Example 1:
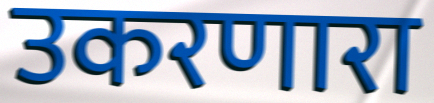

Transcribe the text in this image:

उकरणारा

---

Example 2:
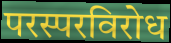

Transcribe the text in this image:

परस्परविरोध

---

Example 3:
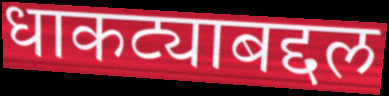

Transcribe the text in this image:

धाकट्याबद्दल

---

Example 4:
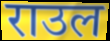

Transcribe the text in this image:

राउल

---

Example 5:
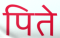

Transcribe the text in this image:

पिते